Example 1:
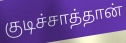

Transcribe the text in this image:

குடிச்சாத்தான்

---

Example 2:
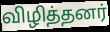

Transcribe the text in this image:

விழித்தனர்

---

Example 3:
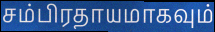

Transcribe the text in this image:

சம்பிரதாயமாகவும்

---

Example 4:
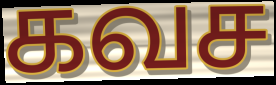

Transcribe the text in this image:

கவச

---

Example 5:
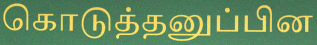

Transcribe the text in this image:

கொடுத்தனுப்பின